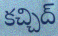
కచ్చిద్